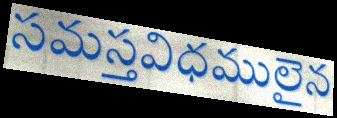
సమస్తవిధములైన